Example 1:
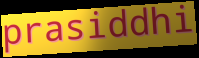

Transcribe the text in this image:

prasiddhi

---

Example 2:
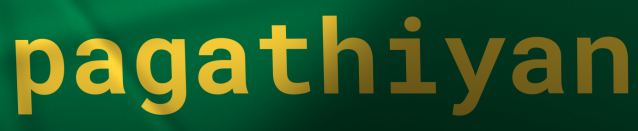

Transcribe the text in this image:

pagathiyan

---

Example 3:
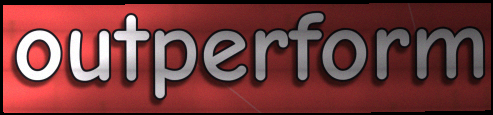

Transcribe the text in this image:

outperform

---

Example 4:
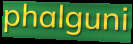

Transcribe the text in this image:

phalguni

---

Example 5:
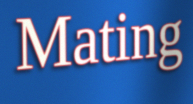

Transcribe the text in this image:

Mating